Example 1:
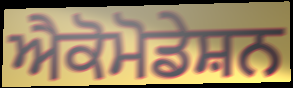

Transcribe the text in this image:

ਐਕੋਮੋਡੇਸ਼ਨ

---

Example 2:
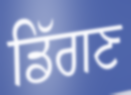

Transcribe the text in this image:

ਡਿੱਗਣ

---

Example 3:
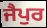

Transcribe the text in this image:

ਜੈਪੁਰ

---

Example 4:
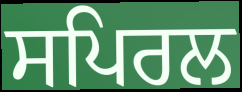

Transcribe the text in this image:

ਸਪਿਰਲ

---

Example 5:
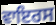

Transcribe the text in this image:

ਵਾਇਰਸ